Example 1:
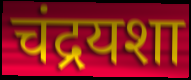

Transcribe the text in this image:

चंद्रयशा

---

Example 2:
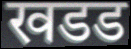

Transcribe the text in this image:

खडड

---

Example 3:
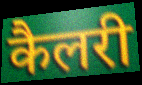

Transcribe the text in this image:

कैलरी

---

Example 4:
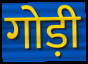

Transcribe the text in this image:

गोड़ी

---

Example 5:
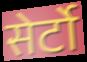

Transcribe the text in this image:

सेर्टो